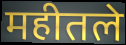
महीतले